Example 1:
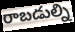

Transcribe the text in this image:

రాబడుల్ని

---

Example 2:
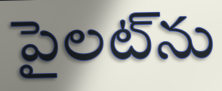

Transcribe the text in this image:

పైలట్‌ను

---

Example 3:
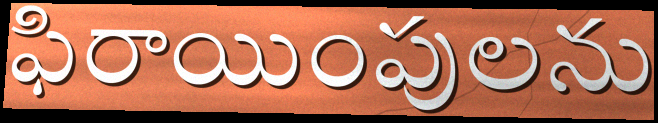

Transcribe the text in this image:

ఫిరాయింపులను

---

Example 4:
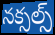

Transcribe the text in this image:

నక్సల్స్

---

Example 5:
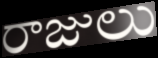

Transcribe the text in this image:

రాజులు